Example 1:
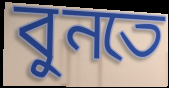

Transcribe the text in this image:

বুনতে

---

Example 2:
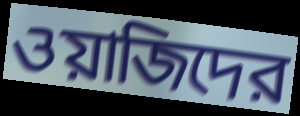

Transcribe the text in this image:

ওয়াজিদের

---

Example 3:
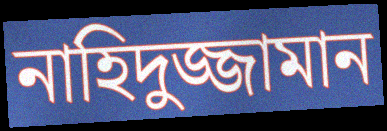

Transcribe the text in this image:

নাহিদুজ্জামান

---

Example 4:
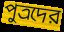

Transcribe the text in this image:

পুত্রদের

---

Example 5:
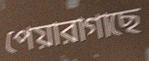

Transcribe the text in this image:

পেয়ারাগাছে